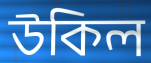
উকিল